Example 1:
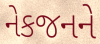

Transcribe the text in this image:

નેકજનને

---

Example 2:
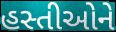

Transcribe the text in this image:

હસ્તીઓને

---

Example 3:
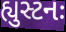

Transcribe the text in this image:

હ્યુસ્ટનઃ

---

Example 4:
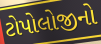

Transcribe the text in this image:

ટોપોલોજીનો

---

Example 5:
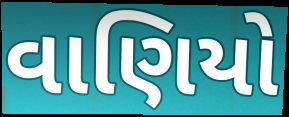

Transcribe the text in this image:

વાણિયો